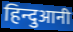
हिन्दुआनी